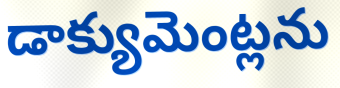
డాక్యుమెంట్లను